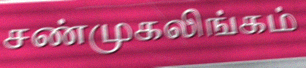
சண்முகலிங்கம்